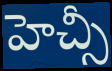
హెచ్సీ